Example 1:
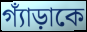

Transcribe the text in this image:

গ্যাঁড়াকে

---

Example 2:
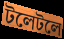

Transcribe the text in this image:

টলেটলে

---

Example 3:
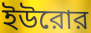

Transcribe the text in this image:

ইউরোর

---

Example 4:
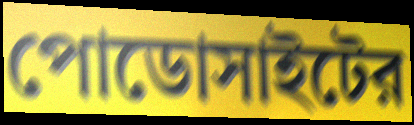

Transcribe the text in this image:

পোডোসাইটের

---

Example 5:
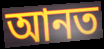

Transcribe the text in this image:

আনত